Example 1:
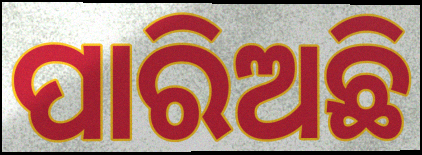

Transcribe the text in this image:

ପାରିଅଛି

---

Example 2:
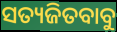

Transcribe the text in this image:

ସତ୍ୟଜିତବାବୁ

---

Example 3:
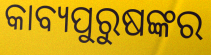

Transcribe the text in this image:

କାବ୍ୟପୁରୁଷଙ୍କର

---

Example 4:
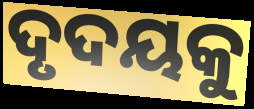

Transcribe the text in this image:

ଦୃଦୟକୁ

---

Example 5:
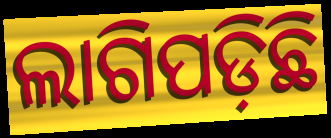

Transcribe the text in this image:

ଲାଗିପଡ଼ିଛି